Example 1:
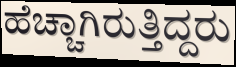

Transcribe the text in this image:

ಹೆಚ್ಚಾಗಿರುತ್ತಿದ್ದರು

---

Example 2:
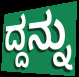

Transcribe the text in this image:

ದ್ದನ್ನು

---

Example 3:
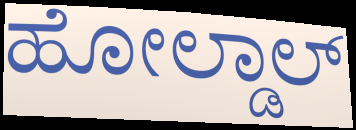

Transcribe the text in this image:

ಹೋಲ್ಡಾಲ್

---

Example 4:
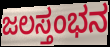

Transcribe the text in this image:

ಜಲಸ್ತಂಭನ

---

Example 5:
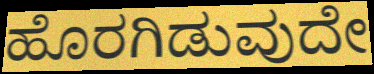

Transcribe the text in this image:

ಹೊರಗಿಡುವುದೇ